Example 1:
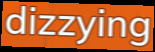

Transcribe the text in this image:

dizzying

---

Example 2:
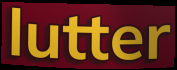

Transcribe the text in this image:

lutter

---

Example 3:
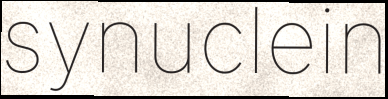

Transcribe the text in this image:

synuclein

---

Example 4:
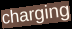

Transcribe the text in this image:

charging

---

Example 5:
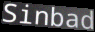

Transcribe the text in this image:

Sinbad